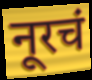
नूरचं